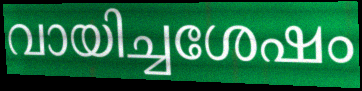
വായിച്ചശേഷം